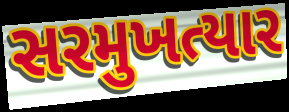
સરમુખત્યાર